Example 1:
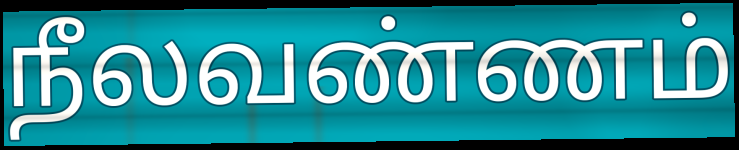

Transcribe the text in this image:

நீலவண்ணம்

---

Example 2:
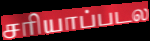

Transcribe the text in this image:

சரியாப்படல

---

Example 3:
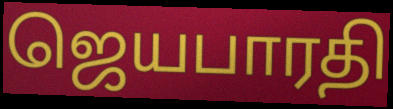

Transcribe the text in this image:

ஜெயபாரதி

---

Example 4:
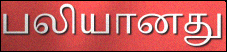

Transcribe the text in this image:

பலியானது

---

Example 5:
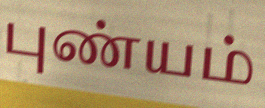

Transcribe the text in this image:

புண்யம்